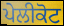
ਪੇਲੀਕੋਟ